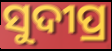
ସୁଦୀପ୍ର